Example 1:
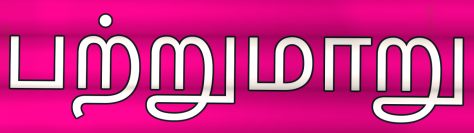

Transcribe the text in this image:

பற்றுமாறு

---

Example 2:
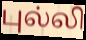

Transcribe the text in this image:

புல்லி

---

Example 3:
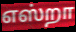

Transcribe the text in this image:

எஸ்றா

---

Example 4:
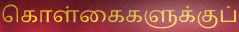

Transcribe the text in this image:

கொள்கைகளுக்குப்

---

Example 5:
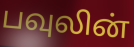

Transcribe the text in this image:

பவுலின்